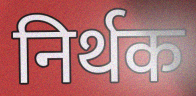
निर्थक